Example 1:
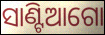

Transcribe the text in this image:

ସାଣ୍ଟିଆଗୋ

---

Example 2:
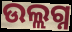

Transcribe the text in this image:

ଉଲ୍ଲଗ୍ନ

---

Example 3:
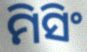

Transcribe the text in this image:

ମିସିଂ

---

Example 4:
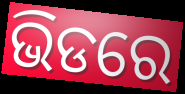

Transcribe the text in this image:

ଭିଡରେ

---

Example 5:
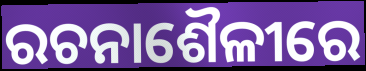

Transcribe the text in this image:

ରଚନାଶୈଳୀରେ